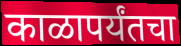
काळापर्यंतचा